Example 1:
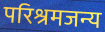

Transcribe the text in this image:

परिश्रमजन्य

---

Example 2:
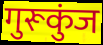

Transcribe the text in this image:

गुरूकुंज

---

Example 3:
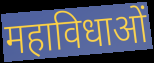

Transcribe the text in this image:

महाविधाओं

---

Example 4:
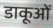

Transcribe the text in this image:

डाकूओं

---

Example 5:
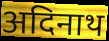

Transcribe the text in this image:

अदिनाथ